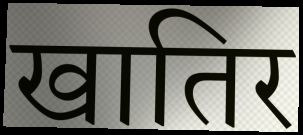
खातिर